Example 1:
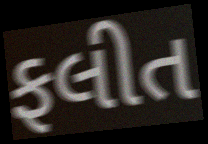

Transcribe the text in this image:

ફલીત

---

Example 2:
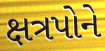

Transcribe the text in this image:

ક્ષત્રપોને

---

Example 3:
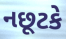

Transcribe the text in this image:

નછૂટકે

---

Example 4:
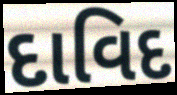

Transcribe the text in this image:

દાવિદ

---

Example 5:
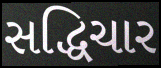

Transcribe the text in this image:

સદ્ધિચાર